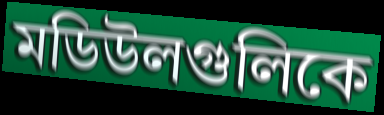
মডিউলগুলিকে